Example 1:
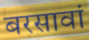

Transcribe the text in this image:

बरसावां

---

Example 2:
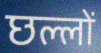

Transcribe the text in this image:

छल्लों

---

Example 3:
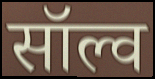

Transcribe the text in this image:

सॉल्व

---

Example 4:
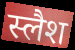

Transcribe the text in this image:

स्लैश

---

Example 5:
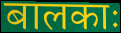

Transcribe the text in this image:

बालकाः